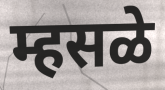
म्हसळे